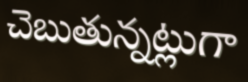
చెబుతున్నట్లుగా